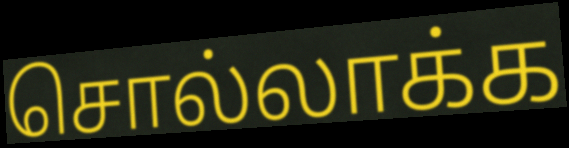
சொல்லாக்க